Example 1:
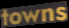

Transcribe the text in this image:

towns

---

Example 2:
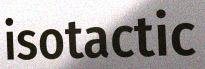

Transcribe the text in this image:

isotactic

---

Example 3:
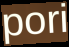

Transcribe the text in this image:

pori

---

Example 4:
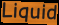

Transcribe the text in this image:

Liquid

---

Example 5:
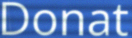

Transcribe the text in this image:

Donat